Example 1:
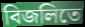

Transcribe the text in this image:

বিজলিতে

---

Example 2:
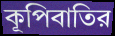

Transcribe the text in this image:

কূপিবাতির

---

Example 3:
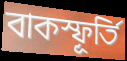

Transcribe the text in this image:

বাকস্ফূর্তি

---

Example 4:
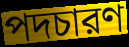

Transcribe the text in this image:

পদচারণ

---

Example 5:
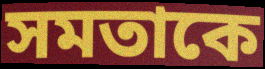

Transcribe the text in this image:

সমতাকে